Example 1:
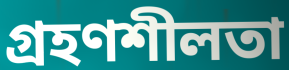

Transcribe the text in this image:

গ্রহণশীলতা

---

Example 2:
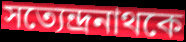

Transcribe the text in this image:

সত্যেন্দ্রনাথকে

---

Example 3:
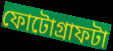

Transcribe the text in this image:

ফোটোগ্রাফটা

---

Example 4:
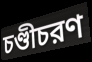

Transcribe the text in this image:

চণ্ডীচরণ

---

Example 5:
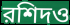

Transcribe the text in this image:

রশিদও